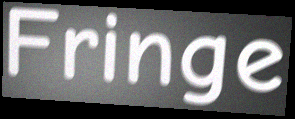
Fringe